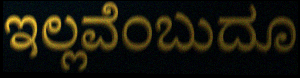
ಇಲ್ಲವೆಂಬುದೂ